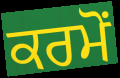
ਕਰਮੋਂ